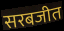
सरबजीत